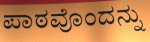
ಪಾಠವೊಂದನ್ನು